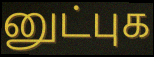
னுட்புக